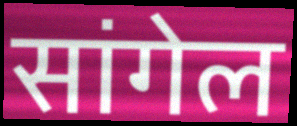
सांगेल